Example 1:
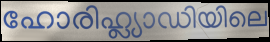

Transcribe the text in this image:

ഹോരിഹ്ല്യാഡിയിലെ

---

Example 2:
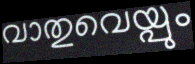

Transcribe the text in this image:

വാതുവെയ്പും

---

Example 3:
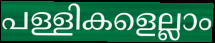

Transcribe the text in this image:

പള്ളികളെല്ലാം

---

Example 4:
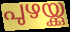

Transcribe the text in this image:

പുഴയ്ക്കു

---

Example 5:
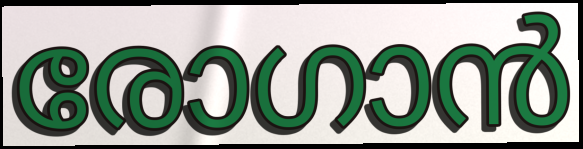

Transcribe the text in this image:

രോഗാൻ